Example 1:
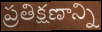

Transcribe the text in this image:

ప్రతిక్షణాన్ని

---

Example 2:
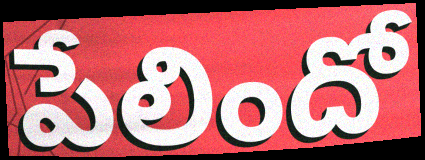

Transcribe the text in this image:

పేలిందో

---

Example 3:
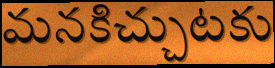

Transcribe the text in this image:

మనకిచ్చుటకు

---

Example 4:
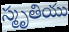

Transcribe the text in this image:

స్మృతియు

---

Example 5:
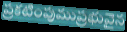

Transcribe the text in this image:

ప్రకటింపుముప్రభువైన